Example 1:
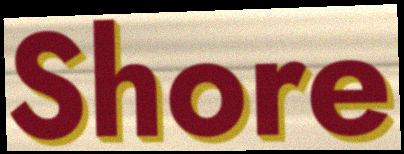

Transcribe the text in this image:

Shore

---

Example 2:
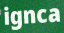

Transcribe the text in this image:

ignca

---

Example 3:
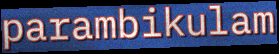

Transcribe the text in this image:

parambikulam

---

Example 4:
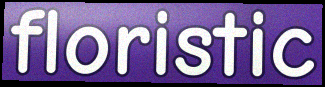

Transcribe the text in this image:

floristic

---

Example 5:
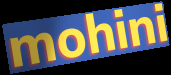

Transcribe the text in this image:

mohini